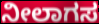
ನೀಲಾಗಸ